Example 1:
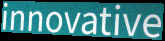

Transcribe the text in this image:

innovative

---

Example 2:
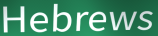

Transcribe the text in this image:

Hebrews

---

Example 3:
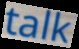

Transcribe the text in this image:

talk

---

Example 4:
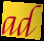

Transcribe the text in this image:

ad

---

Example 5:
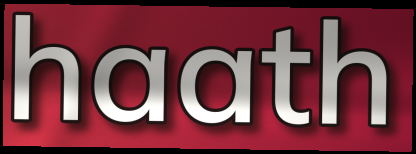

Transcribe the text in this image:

haath